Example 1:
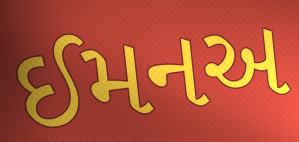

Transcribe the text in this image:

ઈમનઅ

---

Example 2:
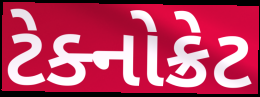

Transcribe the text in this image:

ટેક્નોક્રેટ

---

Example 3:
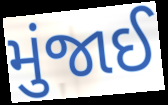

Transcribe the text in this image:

મુંજાઈ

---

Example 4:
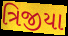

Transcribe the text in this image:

ત્રિજીયા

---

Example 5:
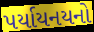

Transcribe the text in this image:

પર્યાયનયનો